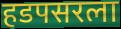
हडपसरला